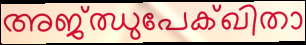
അജ്ഝുപേക്ഖിതാ